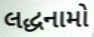
લદ્ધનામો